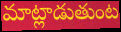
మాట్లాడుతుంట